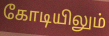
கோடியிலும்